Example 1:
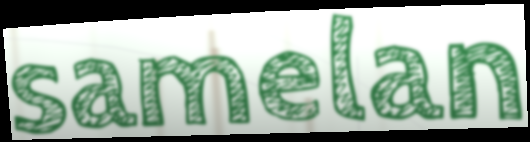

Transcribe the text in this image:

samelan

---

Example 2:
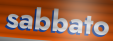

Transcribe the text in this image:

sabbato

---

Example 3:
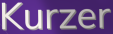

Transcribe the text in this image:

Kurzer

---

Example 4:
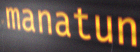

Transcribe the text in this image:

manatun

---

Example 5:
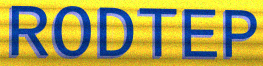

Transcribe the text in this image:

RODTEP